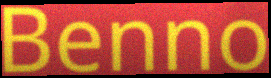
Benno